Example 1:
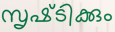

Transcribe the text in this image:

സൃഷ്‌ടിക്കും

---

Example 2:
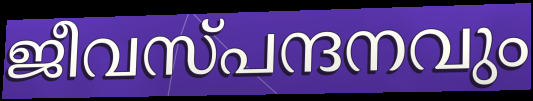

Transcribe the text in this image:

ജീവസ്പന്ദനവും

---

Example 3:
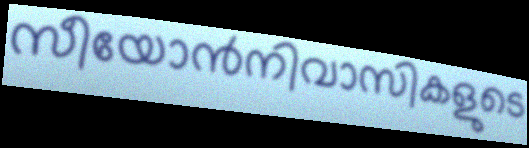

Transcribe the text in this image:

സീയോൻനിവാസികളുടെ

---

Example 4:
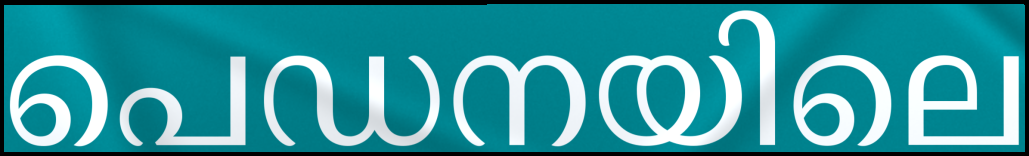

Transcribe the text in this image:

പെഡനയിലെ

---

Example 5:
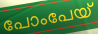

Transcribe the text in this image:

പോംപേയ്